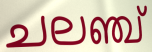
ചലഞ്ച്